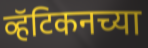
व्हॅटिकनच्या